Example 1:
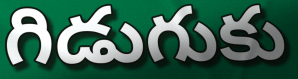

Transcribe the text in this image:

గిడుగుకు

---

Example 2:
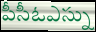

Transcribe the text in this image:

పీసీఓఎస్ను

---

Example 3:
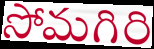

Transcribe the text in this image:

సోమగిరి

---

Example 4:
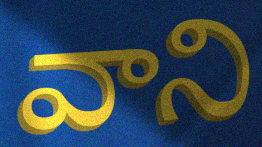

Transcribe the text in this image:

వాని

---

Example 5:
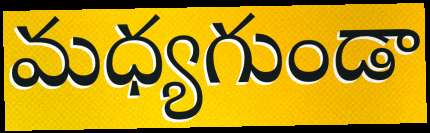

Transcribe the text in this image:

మధ్యగుండా